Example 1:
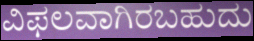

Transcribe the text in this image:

ವಿಫಲವಾಗಿರಬಹುದು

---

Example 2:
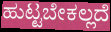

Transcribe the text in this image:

ಹುಟ್ಟಬೇಕಲ್ಲದೆ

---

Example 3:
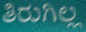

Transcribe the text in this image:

ತಿರುಗಿಲ್ಲ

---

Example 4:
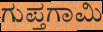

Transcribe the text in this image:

ಗುಪ್ತಗಾಮಿ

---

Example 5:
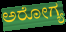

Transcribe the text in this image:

ಅರೋಗ್ಯ